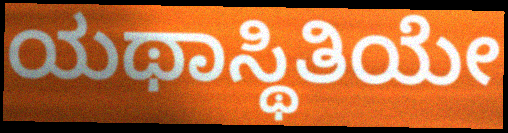
ಯಥಾಸ್ಥಿತಿಯೇ